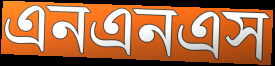
এনএনএস